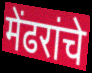
मेंढरांचे